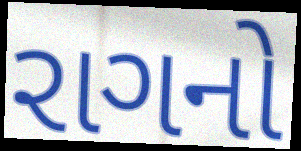
રાગનો